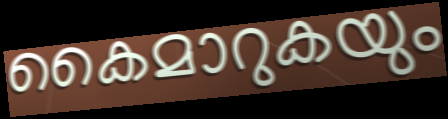
കൈമാറുകയും